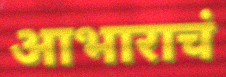
आभाराचं